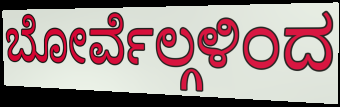
ಬೋರ್ವೆಲ್ಗಳಿಂದ